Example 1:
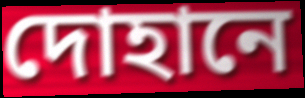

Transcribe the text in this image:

দোহানে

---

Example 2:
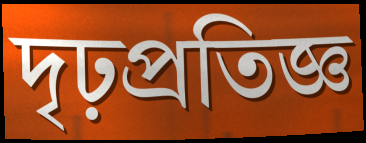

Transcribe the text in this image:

দৃঢ়প্রতিজ্ঞ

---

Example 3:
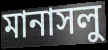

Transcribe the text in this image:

মানাসলু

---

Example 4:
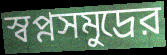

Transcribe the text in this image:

স্বপ্নসমুদ্রের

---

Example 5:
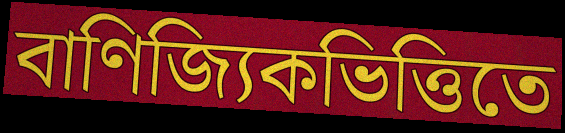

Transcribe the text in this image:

বাণিজ্যিকভিত্তিতে